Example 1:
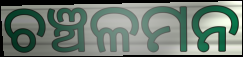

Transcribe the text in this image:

ଚଞ୍ଚଳମନ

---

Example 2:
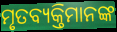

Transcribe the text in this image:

ମୃତବ୍ୟକ୍ତିମାନଙ୍କ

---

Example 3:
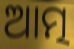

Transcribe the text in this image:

ଆତ୍ମ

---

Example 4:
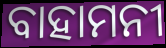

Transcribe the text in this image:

ବାହାମନୀ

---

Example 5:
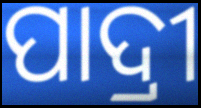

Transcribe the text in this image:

ପାଦ୍ରୀ